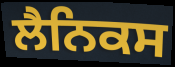
ਲੈਨਿਕਸ